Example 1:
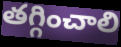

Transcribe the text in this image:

తగ్గించాలి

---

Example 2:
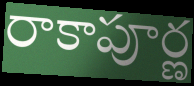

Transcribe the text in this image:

రాకాపూర్ణ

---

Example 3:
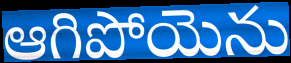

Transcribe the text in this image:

ఆగిపోయెను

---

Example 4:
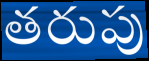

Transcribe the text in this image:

తరుపు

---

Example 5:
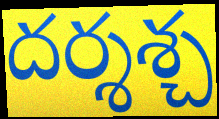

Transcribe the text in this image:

దర్శశ్చ